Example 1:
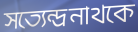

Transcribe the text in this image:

সত্যেন্দ্রনাথকে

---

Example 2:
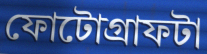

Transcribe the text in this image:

ফোটোগ্রাফটা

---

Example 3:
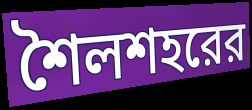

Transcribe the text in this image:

শৈলশহরের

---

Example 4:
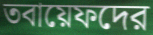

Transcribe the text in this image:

তবায়েফদের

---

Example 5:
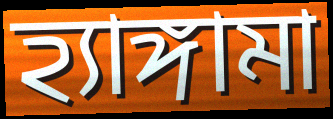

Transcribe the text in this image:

হ্যাঙ্গামা